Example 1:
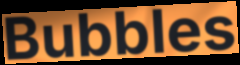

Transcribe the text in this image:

Bubbles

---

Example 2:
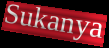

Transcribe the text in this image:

Sukanya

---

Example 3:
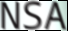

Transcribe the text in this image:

NSA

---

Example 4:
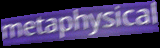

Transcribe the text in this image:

metaphysical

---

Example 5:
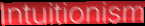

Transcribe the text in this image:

Intuitionism